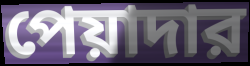
পেয়াদার